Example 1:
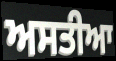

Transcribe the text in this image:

ਅਸਤੀਆ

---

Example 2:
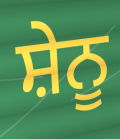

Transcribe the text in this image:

ਸ਼ੇਨੂ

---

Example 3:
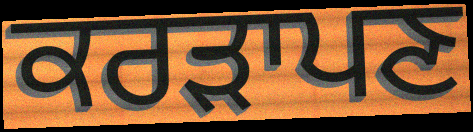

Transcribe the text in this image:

ਕਰੜਾਪਣ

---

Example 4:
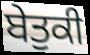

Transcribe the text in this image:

ਬੇਤੁਕੀ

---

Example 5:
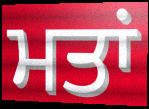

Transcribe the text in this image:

ਮਤਾਂ